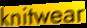
knitwear